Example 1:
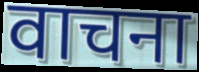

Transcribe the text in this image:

वाचना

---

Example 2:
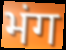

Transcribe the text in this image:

भंग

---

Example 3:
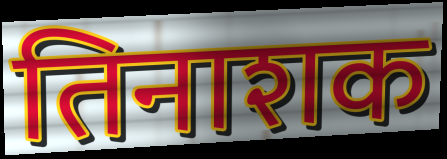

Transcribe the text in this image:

तिनाशक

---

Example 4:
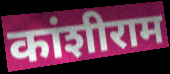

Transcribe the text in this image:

कांशीराम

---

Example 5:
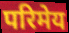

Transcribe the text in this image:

परिमेय